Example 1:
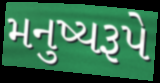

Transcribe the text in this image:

મનુષ્યરૂપે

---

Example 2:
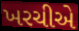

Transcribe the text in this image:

ખરચીએ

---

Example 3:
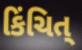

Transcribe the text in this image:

કિંચિત્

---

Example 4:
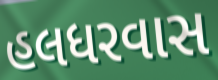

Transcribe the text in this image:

હલધરવાસ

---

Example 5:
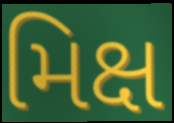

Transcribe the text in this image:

મિક્ષ